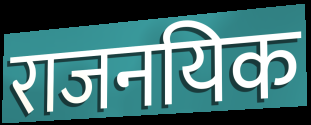
राजनयिक